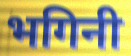
भगिनी